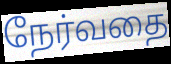
நேர்வதை